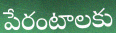
పేరంటాలకు